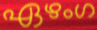
ഏഴംഗ